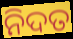
ନିଦତ